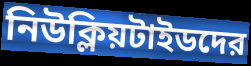
নিউক্লিয়টাইডদের